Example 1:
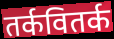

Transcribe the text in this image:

तर्कवितर्क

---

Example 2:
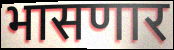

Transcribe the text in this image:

भासणार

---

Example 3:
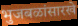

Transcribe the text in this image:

भुजबळांसारखे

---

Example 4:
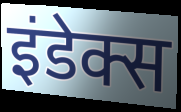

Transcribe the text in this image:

इंडेक्स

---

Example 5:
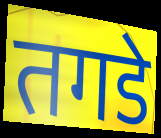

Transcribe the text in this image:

तगडे